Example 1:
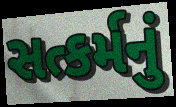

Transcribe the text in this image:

સત્કર્મનું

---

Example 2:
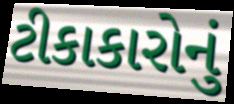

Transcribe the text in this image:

ટીકાકારોનું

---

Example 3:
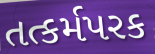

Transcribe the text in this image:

તત્કર્મપરક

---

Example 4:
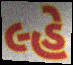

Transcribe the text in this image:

લ્હે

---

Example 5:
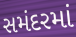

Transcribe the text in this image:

સમંદરમાં